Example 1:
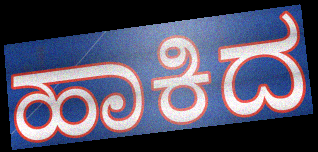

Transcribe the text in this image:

ಹಾಕಿದ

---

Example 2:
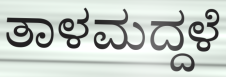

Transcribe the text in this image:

ತಾಳಮದ್ದಳೆ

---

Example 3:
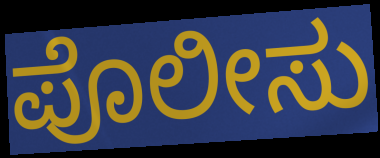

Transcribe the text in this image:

ಪೊಲೀಸು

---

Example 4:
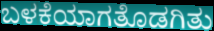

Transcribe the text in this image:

ಬಳಕೆಯಾಗತೊಡಗಿತು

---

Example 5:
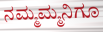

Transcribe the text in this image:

ನಮ್ಮಮ್ಮನಿಗೂ